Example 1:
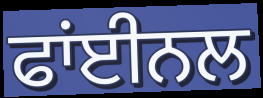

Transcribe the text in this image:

ਫਾਂਈਨਲ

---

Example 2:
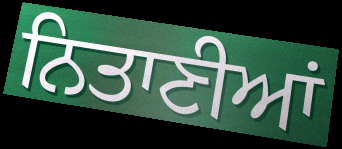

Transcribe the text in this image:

ਨਿਤਾਣੀਆਂ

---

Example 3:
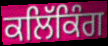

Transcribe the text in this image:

ਕਲਿੱਕਿੰਗ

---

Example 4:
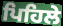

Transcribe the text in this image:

ਪਿਹਿਲੇ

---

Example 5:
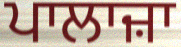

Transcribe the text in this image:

ਪਾਲਾਜ਼ਾ